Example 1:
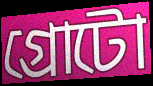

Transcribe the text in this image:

গ্রোটো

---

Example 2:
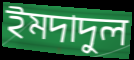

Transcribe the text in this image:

ইমদাদুল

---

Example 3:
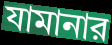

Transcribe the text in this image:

যামানার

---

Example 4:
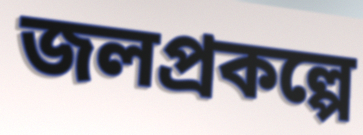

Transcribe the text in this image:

জলপ্রকল্পে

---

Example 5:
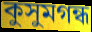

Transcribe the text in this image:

কুসুমগন্ধ